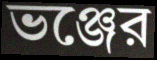
ভঞ্জের